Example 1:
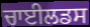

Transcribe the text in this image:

ਚਾਈਲਡਸ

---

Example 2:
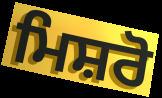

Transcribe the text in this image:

ਮਿਸ਼ਰੋ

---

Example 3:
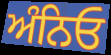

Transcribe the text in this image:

ਅੰਨਿਓ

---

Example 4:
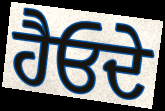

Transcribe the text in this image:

ਹੈਓਦੇ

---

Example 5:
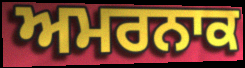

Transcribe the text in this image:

ਅਮਰਨਾਕ